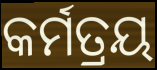
କର୍ମତ୍ରୟ